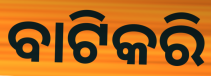
ବାଟିକରି